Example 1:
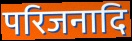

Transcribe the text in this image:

परिजनादि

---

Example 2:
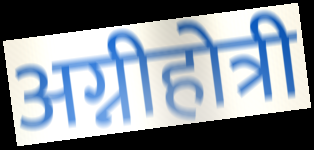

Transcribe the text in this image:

अग्नीहोत्री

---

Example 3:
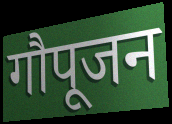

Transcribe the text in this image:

गौपूजन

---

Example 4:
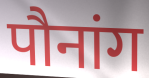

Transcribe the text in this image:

पौनांग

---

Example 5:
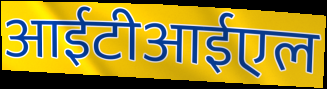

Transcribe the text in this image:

आईटीआईएल